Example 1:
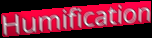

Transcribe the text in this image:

Humification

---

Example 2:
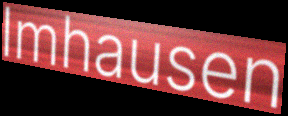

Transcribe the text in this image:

Imhausen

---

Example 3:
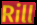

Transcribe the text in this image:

Rill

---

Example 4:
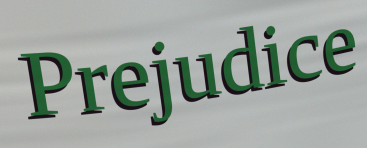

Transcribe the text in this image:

Prejudice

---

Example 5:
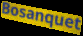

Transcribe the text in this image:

Bosanquet